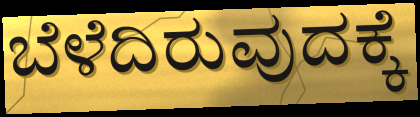
ಬೆಳೆದಿರುವುದಕ್ಕೆ